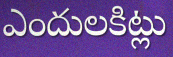
ఎందులకిట్లు